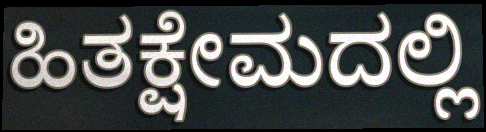
ಹಿತಕ್ಷೇಮದಲ್ಲಿ